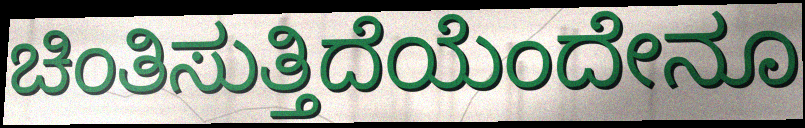
ಚಿಂತಿಸುತ್ತಿದೆಯೆಂದೇನೂ